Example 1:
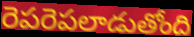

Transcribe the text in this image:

రెపరెపలాడుతోంది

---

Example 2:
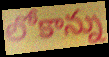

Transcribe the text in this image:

లోకాన్ను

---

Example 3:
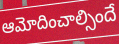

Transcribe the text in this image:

ఆమోదించాల్సిందే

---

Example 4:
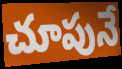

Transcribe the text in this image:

చూపునే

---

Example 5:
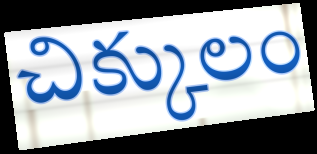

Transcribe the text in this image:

చిక్కులం